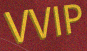
VVIP